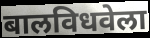
बालविधवेला